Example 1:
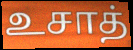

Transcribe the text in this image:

உசாத்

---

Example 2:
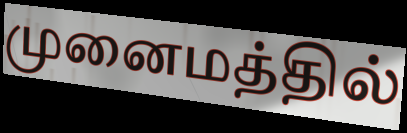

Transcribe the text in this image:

முனைமத்தில்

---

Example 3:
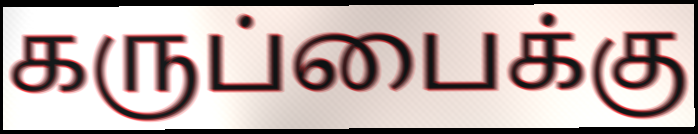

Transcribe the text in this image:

கருப்பைக்கு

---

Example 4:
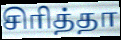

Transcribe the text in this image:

சிரித்தா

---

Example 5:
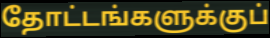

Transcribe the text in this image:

தோட்டங்களுக்குப்